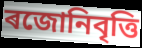
ৰজোনিবৃত্তি